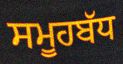
ਸਮੂਹਬੱਧ